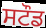
ਸਟੌਡ